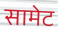
सामेट